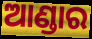
ଆଣ୍ଡାର